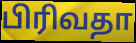
பிரிவதா